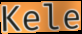
Kele